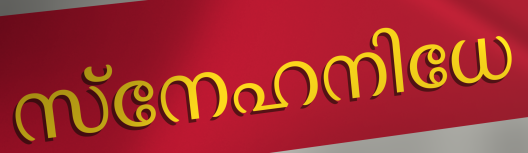
സ്നേഹനിധേ